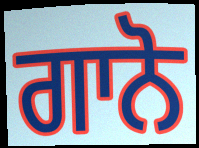
ਗਾਨੋ